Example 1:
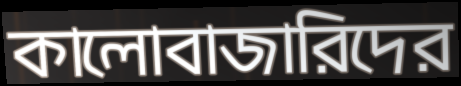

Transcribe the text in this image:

কালোবাজারিদের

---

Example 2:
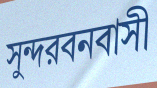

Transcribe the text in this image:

সুন্দরবনবাসী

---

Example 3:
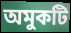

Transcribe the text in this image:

অমুকটি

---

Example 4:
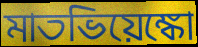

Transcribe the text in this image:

মাতভিয়েঙ্কো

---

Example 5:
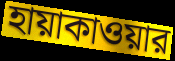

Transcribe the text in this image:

হায়াকাওয়ার